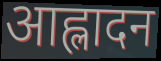
आह्लादन